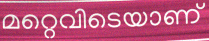
മറ്റെവിടെയാണ്